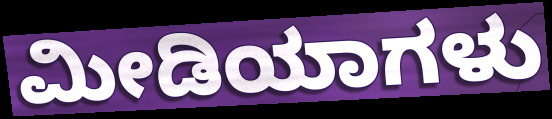
ಮೀಡಿಯಾಗಳು